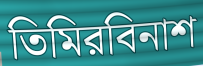
তিমিরবিনাশ